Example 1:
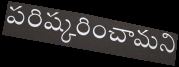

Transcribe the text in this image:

పరిష్కరించామని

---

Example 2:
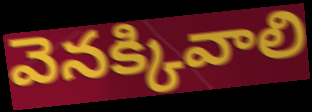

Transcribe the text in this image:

వెనక్కివాలి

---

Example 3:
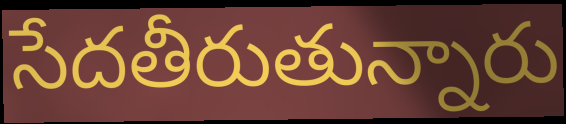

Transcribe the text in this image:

సేదతీరుతున్నారు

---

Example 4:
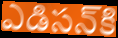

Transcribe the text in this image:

ఎడిసన్‌కి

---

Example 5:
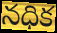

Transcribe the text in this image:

నధిక